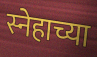
स्नेहाच्या